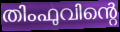
തിംഫുവിന്റെ